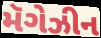
મૅગેઝીન